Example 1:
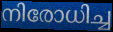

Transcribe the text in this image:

നിരോധിച്ച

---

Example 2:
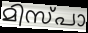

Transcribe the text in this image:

മിസ്പാ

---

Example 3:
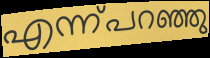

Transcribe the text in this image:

എന്ന്പറഞ്ഞു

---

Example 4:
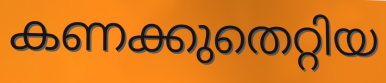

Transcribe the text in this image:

കണക്കുതെറ്റിയ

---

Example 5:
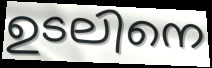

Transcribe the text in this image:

ഉടലിനെ